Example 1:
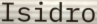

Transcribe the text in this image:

Isidro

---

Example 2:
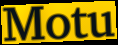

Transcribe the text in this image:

Motu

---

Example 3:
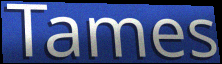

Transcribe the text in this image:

Tames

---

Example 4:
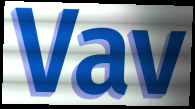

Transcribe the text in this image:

Vav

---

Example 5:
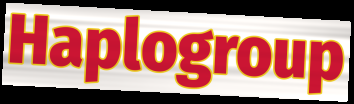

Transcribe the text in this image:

Haplogroup